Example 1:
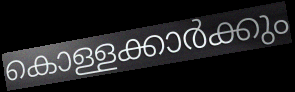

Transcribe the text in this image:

കൊള്ളക്കാർക്കും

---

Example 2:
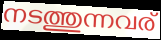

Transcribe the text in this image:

നടത്തുന്നവര്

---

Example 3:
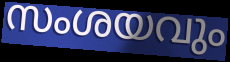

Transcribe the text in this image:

സംശയവും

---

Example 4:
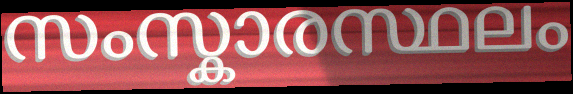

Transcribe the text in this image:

സംസ്കാരസ്ഥലം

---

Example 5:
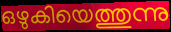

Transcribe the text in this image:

ഒഴുകിയെത്തുന്നു